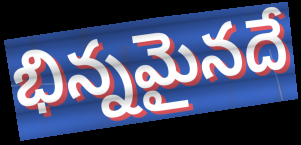
భిన్నమైనదే